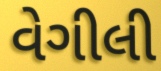
વેગીલી